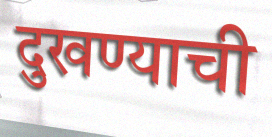
दुखण्याची